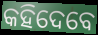
କହିଦେବେ